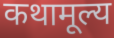
कथामूल्य